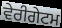
ਵੇਰੀਗੇਟਮ